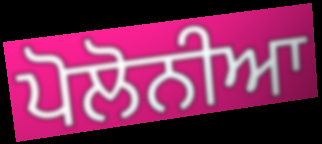
ਪੋਲੋਨੀਆ